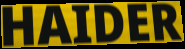
HAIDER